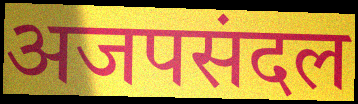
अजपसंदल